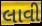
લાવી